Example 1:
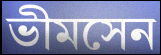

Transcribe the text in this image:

ভীমসেন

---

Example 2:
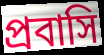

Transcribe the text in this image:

প্রবাসি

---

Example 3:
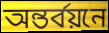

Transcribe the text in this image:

অন্তর্বয়নে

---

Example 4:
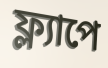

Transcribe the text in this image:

ফ্ল্যাপে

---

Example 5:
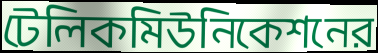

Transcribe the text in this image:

টেলিকমিউনিকেশনের